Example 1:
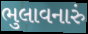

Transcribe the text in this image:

ભુલાવનારું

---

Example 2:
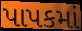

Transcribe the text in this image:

પાપકમાં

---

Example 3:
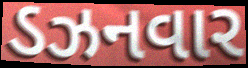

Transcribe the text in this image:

ડઝનવાર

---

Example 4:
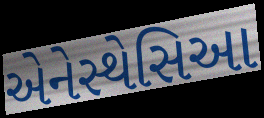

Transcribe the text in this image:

એનેસ્થેસિઆ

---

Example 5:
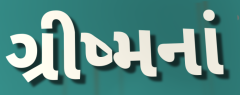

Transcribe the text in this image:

ગ્રીષ્મનાં